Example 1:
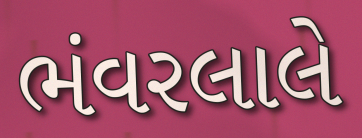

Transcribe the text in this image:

ભંવરલાલે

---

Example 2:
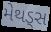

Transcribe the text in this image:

મેથડ્સ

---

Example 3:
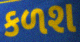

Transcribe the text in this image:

કળશ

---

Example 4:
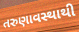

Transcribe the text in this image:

તરુણાવસ્થાથી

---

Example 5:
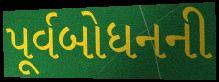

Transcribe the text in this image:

પૂર્વબોધનની